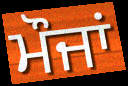
ਮੌਜਾਂ